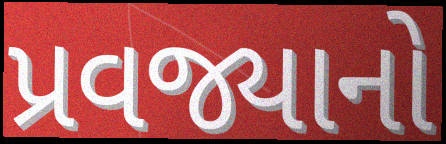
પ્રવજ્યાનો